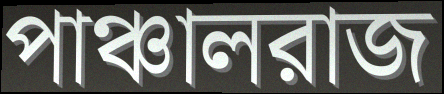
পাঞ্চালরাজ